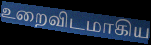
உறைவிடமாகிய